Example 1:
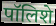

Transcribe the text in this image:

पॉलिशे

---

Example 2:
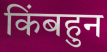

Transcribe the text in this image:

किंबहुन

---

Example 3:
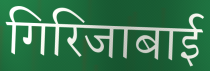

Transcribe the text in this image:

गिरिजाबाई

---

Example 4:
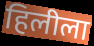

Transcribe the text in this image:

हिलीला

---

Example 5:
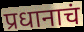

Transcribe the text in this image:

प्रधानाचं